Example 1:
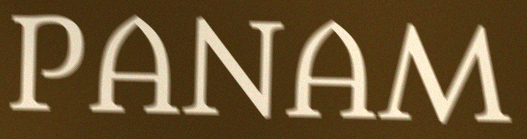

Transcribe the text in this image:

PANAM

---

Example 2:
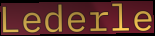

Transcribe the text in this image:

Lederle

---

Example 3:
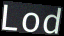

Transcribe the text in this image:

Lod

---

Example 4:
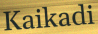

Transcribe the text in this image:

Kaikadi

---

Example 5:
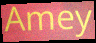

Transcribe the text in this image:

Amey